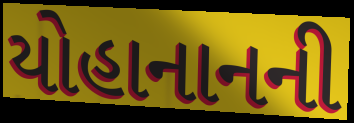
યોહાનાનની